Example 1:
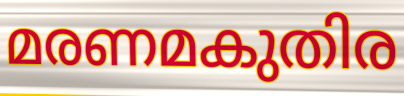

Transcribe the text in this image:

മരണമകുതിര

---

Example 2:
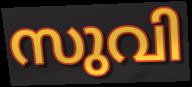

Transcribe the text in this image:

സുവി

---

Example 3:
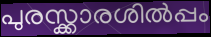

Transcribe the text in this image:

പുരസ്ക്കാരശിൽപ്പം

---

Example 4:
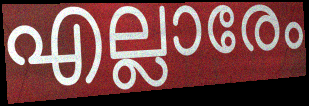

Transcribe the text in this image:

എല്ലാരേം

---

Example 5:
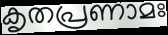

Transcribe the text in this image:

കൃതപ്രണാമഃ